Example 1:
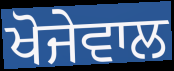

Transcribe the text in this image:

ਖੋਜੇਵਾਲ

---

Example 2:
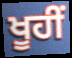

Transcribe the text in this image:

ਖੂਹੀਂ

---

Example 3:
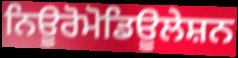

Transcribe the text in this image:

ਨਿਊਰੋਮੋਡਿਊਲੇਸ਼ਨ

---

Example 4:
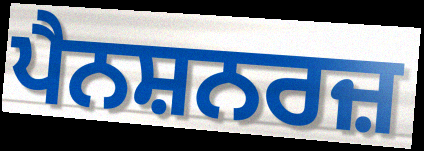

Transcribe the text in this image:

ਪੈਨਸ਼ਨਰਜ਼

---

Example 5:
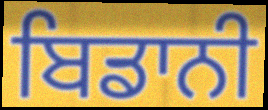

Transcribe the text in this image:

ਬਿਡਾਨੀ